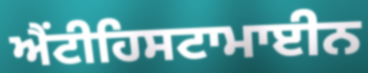
ਐਂਟੀਹਿਸਟਾਮਾਈਨ